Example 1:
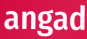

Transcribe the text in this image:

angad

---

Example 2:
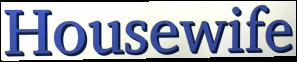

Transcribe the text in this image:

Housewife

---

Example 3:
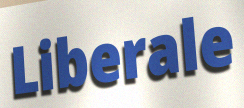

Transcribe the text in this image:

Liberale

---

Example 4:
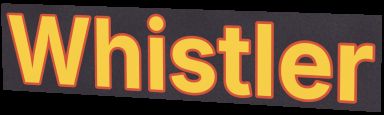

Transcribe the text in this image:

Whistler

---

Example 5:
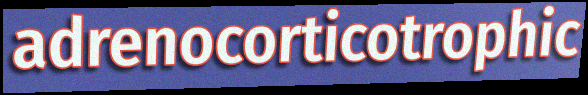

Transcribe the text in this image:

adrenocorticotrophic